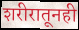
शरीरातूनही